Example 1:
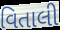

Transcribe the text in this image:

વિતાલી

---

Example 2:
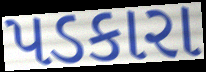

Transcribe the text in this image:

પડકારા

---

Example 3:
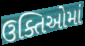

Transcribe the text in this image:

ઉક્તિઓમાં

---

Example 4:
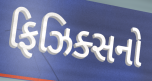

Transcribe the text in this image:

ફિઝિક્સનો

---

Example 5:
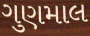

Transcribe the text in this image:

ગુણમાલ